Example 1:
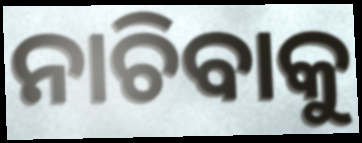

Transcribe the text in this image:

ନାଚିବାକୁ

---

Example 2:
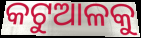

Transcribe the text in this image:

କଟୁଆଳକୁ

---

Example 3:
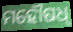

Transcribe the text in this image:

ମହୌଷଧ୍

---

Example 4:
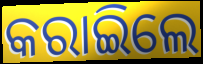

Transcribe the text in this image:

କରାଇିଲେ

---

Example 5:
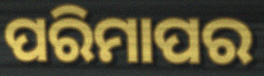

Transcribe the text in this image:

ପରିମାପର